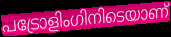
പട്രോളിംഗിനിടെയാണ്